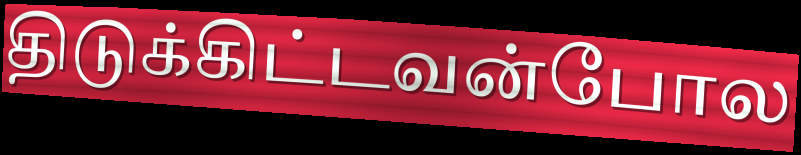
திடுக்கிட்டவன்போல